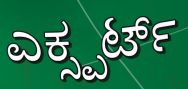
ಎಕ್ಸ್ಪರ್ಟ್